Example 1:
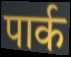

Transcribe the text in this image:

पार्क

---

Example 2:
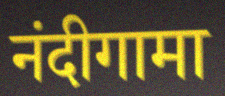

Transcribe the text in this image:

नंदीगामा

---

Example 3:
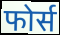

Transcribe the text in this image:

फोर्स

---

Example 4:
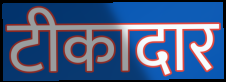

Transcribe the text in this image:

टीकादार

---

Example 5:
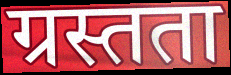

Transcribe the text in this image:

ग्रस्तता